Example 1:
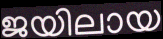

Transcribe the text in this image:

ജയിലായ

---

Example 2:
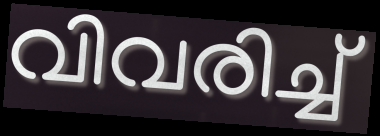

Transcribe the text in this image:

വിവരിച്ച്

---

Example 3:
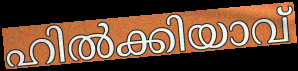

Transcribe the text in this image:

ഹിൽക്കിയാവ്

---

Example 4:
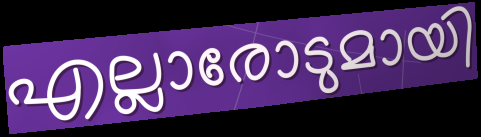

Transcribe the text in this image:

എല്ലാരോടുമായി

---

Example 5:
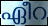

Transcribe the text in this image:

ഏീറ